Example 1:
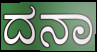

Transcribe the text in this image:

ದನಾ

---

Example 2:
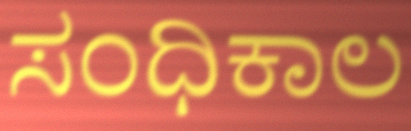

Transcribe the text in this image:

ಸಂಧಿಕಾಲ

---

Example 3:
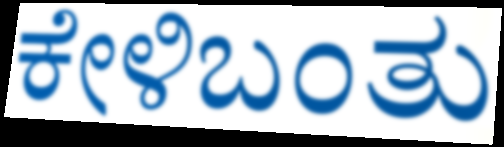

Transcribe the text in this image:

ಕೇಳಿಬಂತು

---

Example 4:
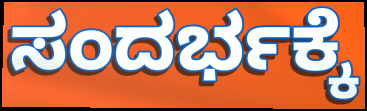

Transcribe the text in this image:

ಸಂದರ್ಭಕ್ಕೆ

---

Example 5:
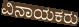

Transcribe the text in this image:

ವಿನಾಯಕರು